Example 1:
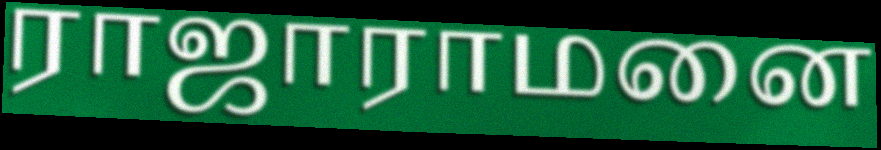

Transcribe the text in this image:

ராஜாராமனை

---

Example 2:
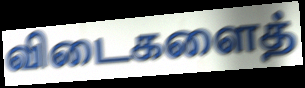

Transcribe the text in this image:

விடைகளைத்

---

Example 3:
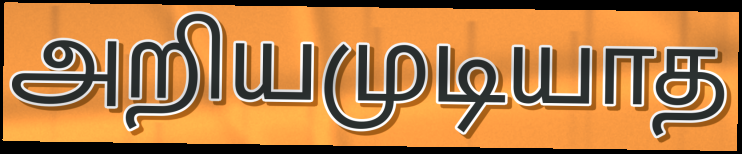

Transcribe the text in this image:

அறியமுடியாத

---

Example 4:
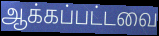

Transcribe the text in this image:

ஆக்கப்பட்டவை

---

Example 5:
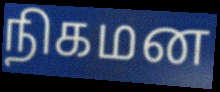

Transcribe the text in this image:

நிகமன